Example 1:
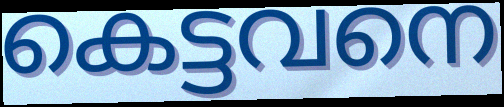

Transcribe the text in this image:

കെട്ടവനെ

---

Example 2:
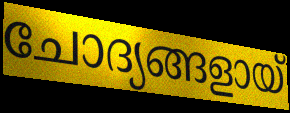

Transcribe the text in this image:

ചോദ്യങ്ങളായ്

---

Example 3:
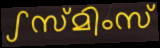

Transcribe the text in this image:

ഽസ്മിംസ്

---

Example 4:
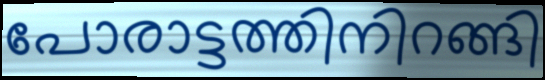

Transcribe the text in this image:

പോരാട്ടത്തിനിറങ്ങി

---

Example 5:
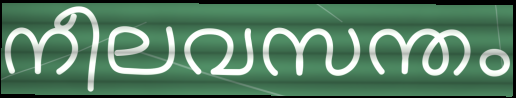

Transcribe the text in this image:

നീലവസന്തം